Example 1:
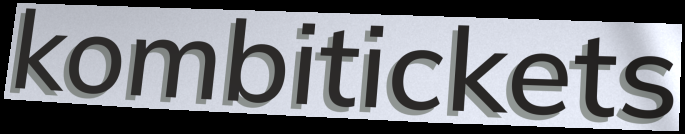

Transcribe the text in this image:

kombitickets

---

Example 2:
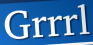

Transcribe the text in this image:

Grrrl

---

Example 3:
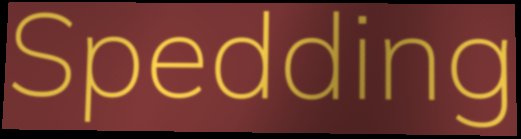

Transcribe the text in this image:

Spedding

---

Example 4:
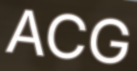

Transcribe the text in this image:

ACG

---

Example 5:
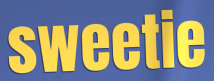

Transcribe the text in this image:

sweetie